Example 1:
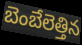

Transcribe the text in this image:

బెంబేలెత్తిన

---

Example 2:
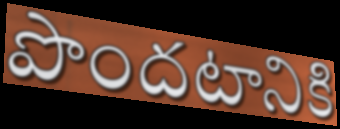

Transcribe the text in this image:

పొందటానికి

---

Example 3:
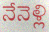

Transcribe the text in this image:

నేనెళ్లి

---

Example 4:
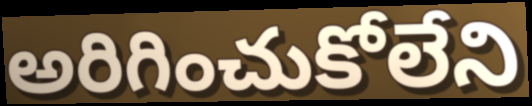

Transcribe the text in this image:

అరిగించుకోలేని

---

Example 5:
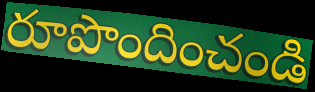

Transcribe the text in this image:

రూపొందించండి